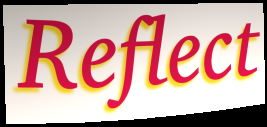
Reflect